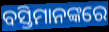
ବସ୍ତିମାନଙ୍କରେ